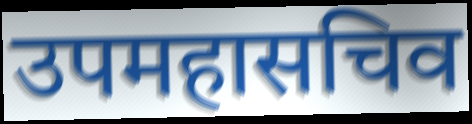
उपमहासचिव